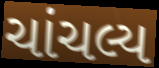
ચાંચલ્ય